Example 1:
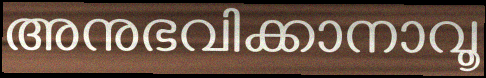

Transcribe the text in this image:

അനുഭവിക്കാനാവൂ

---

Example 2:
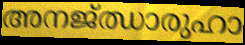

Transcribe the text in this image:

അനജ്ഝാരുഹാ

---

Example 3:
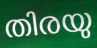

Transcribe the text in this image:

തിരയു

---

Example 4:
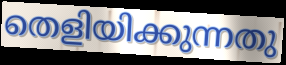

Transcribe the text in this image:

തെളിയിക്കുന്നതു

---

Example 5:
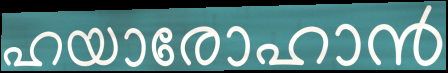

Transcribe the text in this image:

ഹയാരോഹാൻ